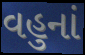
વહુનાં